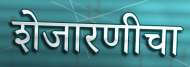
शेजारणीचा